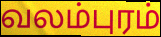
வலம்புரம்